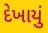
દેખાયું